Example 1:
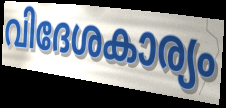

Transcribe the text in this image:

വിദേശകാര്യം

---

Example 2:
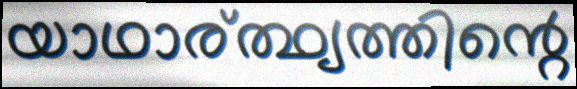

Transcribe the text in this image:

യാഥാര്ത്ഥ്യത്തിന്റെ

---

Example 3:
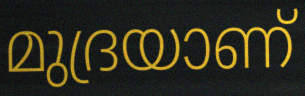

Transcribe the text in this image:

മുദ്രയാണ്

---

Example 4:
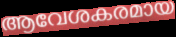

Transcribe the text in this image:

ആവേശകരമായ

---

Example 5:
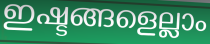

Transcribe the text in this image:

ഇഷ്ടങ്ങളെല്ലാം